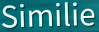
Similie